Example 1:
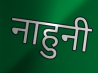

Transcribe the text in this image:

नाहुनी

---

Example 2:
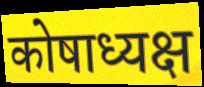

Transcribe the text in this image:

कोषाध्यक्ष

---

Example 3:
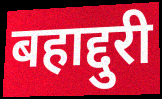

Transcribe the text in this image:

बहाद्दुरी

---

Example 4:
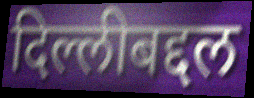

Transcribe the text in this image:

दिल्लीबद्दल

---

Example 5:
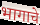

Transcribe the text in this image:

भागाचे